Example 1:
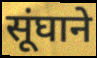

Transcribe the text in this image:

सूंघाने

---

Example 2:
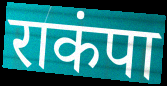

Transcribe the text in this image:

राकंपा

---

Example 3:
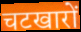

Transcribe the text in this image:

चटखारों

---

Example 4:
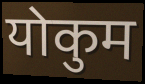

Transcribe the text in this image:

योकुम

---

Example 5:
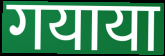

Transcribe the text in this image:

गयाया